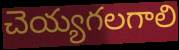
చెయ్యగలగాలి